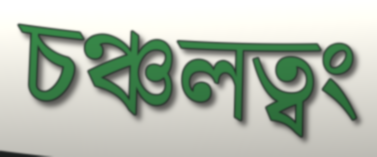
চঞ্চলত্বং